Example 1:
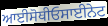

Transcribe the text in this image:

ਆਈਸੋਥੀਓਸਾਈਨੇਟ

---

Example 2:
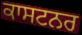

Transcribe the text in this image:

ਕਾਸਟਨਰ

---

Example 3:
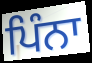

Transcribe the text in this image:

ਪਿੰਨਾ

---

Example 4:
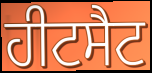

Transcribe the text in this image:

ਹੀਟਸੈਟ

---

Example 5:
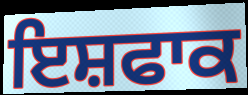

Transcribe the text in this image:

ਇਸ਼ਫਾਕ